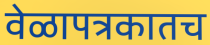
वेळापत्रकातच